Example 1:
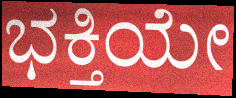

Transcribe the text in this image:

ಭಕ್ತಿಯೇ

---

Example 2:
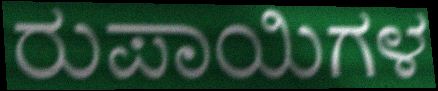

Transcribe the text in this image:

ರುಪಾಯಿಗಳ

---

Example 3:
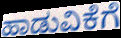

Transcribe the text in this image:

ಹಾಡುವಿಕೆಗೆ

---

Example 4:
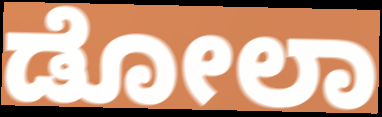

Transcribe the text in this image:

ಡೋಲಾ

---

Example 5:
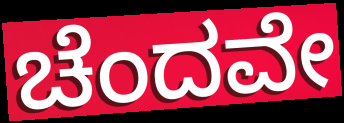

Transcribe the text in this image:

ಚೆಂದವೇ